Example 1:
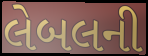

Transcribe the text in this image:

લેબલની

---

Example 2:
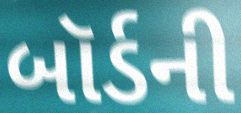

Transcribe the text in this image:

બૉર્ડની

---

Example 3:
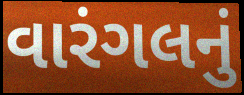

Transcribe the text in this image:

વારંગલનું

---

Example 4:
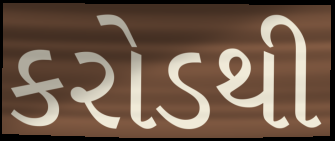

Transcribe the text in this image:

કરોડથી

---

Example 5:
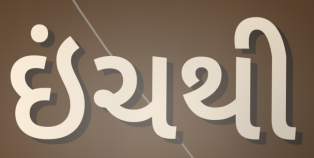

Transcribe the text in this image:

ઇંચથી